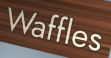
Waffles